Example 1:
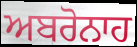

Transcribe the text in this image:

ਅਬਰੋਨਾਹ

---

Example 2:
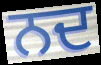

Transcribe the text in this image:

ਨਦ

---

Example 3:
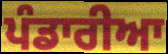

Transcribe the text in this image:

ਪੰਡਾਰੀਆ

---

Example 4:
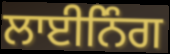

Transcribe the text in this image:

ਲਾਈਨਿੰਗ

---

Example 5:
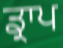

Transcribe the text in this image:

ਡ੍ਰਾਪ